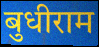
बुधीराम